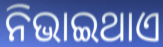
ନିଭାଇଥାଏ